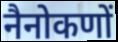
नैनोकणों